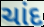
ચાંદ